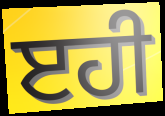
ੲਹੀ